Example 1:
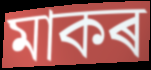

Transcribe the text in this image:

মাকৰ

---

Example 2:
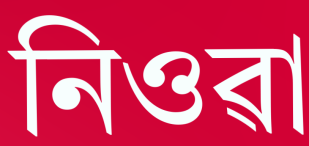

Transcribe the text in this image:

নিওৱা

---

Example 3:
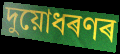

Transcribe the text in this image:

দুয়োধৰণৰ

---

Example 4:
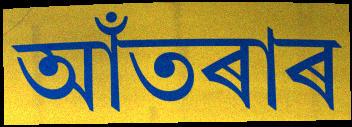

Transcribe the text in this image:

আঁতৰাৰ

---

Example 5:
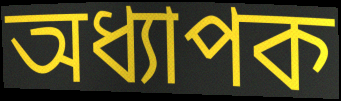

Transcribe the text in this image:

অধ্যাপক